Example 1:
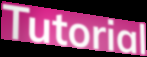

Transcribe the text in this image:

Tutorial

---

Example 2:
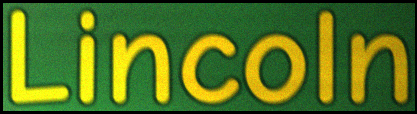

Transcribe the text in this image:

Lincoln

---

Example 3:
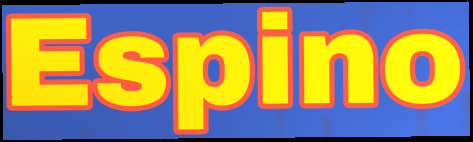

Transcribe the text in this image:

Espino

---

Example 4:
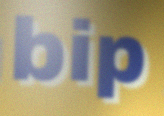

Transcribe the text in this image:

bip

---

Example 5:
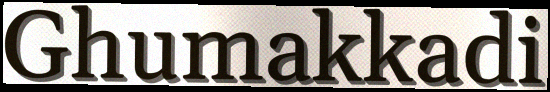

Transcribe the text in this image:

Ghumakkadi